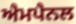
ਐਮਪੈਨਲ